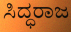
ಸಿದ್ಧರಾಜ